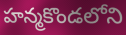
హన్మకొండలోని